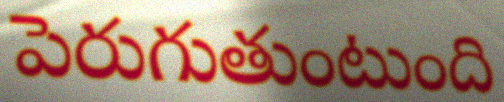
పెరుగుతుంటుంది